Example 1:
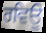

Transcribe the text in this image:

ਰਵਿਊ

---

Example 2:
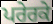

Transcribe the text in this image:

ਪਰੇਰਕੇ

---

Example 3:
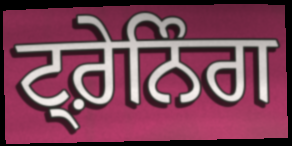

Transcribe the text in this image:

ਟ੍ਰ਼ੇਨਿੰਗ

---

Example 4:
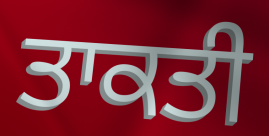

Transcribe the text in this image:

ਤਾਕਤੀ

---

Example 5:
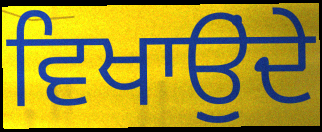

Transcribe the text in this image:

ਵਿਖਾਉੁਂਦੇ